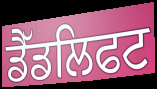
ਡੈੱਡਲਿਫਟ